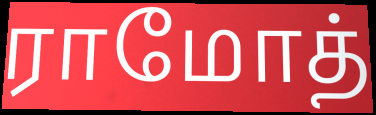
ராமோத்